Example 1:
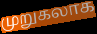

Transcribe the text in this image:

முறுகலாக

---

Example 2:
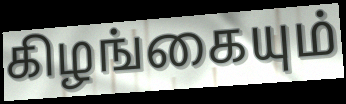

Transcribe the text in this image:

கிழங்கையும்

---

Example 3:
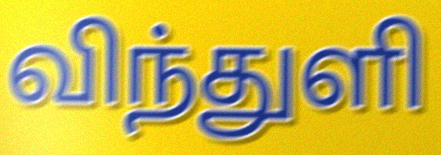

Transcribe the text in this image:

விந்துளி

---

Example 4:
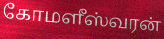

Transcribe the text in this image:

கோமளீஸ்வரன்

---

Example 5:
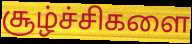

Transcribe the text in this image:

சூழ்ச்சிகளை